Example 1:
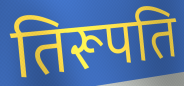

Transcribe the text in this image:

तिरूपति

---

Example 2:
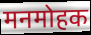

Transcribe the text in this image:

मनमोहक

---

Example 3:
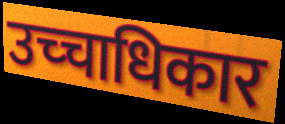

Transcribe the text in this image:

उच्‍चाधिकार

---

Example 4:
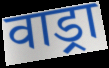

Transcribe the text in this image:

वाड्रा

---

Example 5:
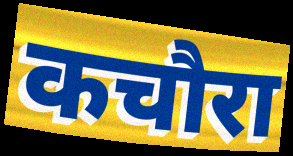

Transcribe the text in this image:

कचौरा